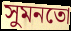
সুমনতো